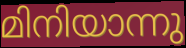
മിനിയാന്നു